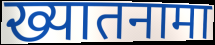
ख्यातनामा